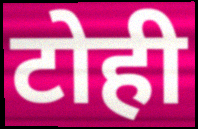
टोही